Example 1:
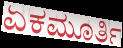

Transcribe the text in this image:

ಏಕಮೂರ್ತಿ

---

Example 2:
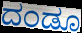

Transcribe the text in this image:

ದಂಡೂ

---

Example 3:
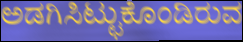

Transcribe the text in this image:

ಅಡಗಿಸಿಟ್ಟುಕೊಂಡಿರುವ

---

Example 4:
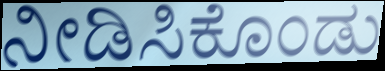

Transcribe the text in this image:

ನೀಡಿಸಿಕೊಂಡು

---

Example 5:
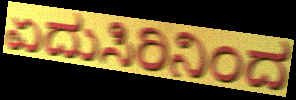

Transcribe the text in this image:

ಏದುಸಿರಿನಿಂದ